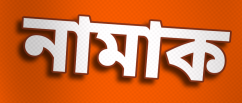
নামাক